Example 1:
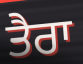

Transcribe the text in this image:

ਤੈਰਾ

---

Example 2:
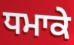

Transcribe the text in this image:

ਧਮਾਕੇ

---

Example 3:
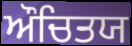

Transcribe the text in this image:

ਔਚਿਤਯ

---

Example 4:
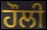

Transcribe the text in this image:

ਹੌਲੀ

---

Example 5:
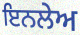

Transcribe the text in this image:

ਇਨਲੇਅ